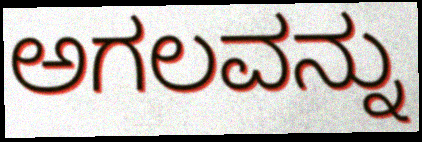
ಅಗಲವನ್ನು